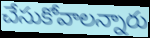
చేసుకోవాలన్నారు